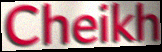
Cheikh